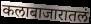
कलाबाजारातलं